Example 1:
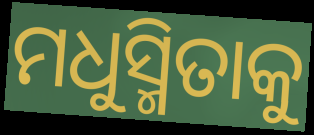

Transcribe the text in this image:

ମଧୁସ୍ମିତାକୁ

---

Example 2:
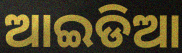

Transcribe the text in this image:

ଆଇଡିଆ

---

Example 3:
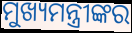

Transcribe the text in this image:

ମୁଖ୍ୟମନ୍ତ୍ରୀଙ୍କର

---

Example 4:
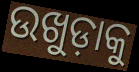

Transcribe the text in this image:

ଉଖୁଡ଼ାକୁ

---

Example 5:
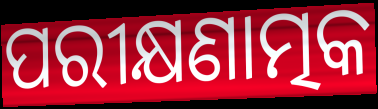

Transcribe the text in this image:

ପରୀକ୍ଷଣାତ୍ମକ